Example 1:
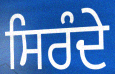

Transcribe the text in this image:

ਸਿਰੰਦੇ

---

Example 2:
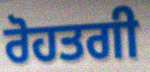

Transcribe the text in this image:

ਰੋਹਤਗੀ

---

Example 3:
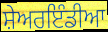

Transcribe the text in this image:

ਸ਼ੇਅਰਇੰਡੀਆ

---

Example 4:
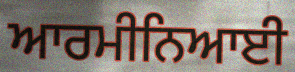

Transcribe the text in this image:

ਆਰਮੀਨਿਆਈ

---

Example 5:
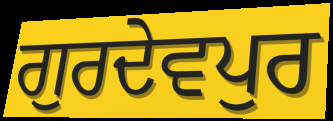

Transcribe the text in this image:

ਗੁਰਦੇਵਪੁਰ